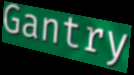
Gantry